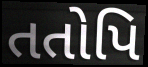
તતોપિ